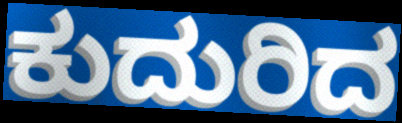
ಕುದುರಿದ